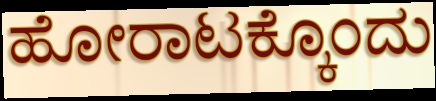
ಹೋರಾಟಕ್ಕೊಂದು